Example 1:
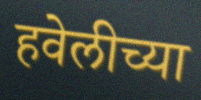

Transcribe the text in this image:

हवेलीच्या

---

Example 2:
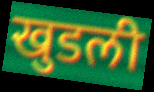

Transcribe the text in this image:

खुडली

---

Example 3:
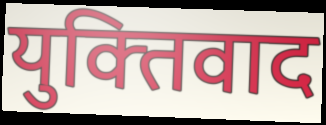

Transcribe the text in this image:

युक्‍तिवाद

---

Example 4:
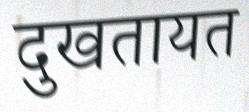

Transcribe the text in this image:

दुखतायत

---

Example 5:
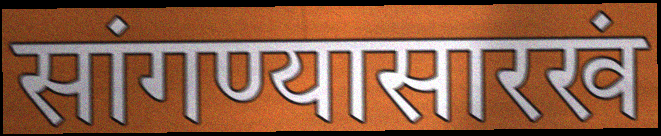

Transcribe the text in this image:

सांगण्यासारखं